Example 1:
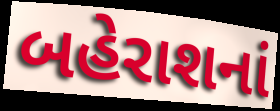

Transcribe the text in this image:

બહેરાશનાં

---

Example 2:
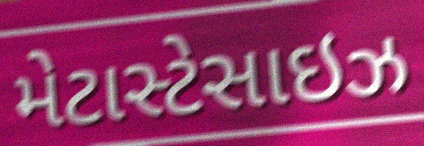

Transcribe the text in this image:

મેટાસ્ટેસાઇઝ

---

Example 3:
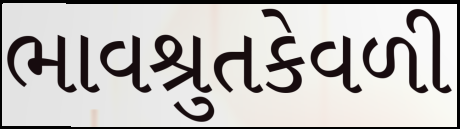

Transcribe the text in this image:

ભાવશ્રુતકેવળી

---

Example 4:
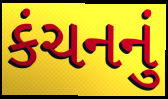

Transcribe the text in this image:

કંચનનું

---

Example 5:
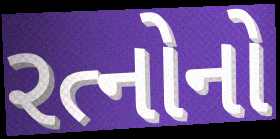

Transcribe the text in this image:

રત્નોનો